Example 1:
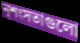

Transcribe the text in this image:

নৃশংসতাগুলো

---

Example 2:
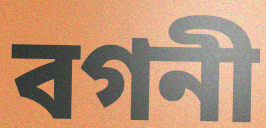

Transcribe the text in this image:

বগনী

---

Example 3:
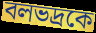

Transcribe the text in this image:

বলভদ্রকে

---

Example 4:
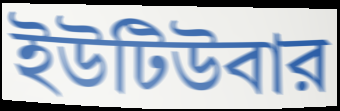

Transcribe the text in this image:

ইউটিউবার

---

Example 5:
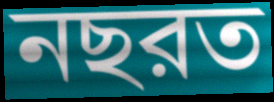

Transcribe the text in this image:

নছরত